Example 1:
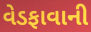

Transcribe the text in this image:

વેડફાવાની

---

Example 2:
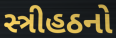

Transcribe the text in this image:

સ્ત્રીહઠનો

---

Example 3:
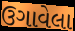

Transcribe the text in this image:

ઉગાવેલા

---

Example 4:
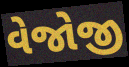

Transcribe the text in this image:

વેજોજી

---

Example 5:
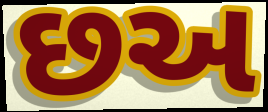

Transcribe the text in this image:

છઅ